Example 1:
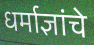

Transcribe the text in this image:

धर्माज्ञांचे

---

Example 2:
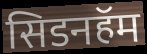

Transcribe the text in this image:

सिडनहॅम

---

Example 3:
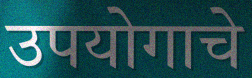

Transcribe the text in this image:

उपयोगाचे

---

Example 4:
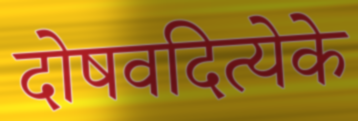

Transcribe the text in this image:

दोषवदित्येके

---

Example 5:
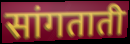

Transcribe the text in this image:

सांगताती